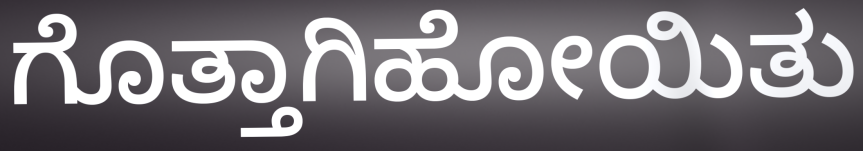
ಗೊತ್ತಾಗಿಹೋಯಿತು